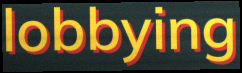
lobbying